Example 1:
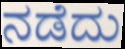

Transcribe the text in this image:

ನಡೆದು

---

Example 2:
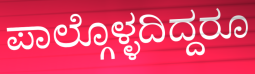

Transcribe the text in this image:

ಪಾಲ್ಗೊಳ್ಳದಿದ್ದರೂ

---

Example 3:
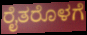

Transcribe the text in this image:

ರೈತರೊಳಗೆ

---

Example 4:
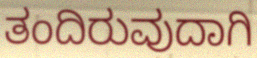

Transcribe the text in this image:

ತಂದಿರುವುದಾಗಿ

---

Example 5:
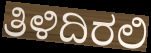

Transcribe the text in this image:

ತಿಳಿದಿರಲಿ